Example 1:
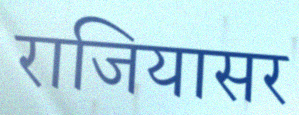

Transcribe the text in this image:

राजियासर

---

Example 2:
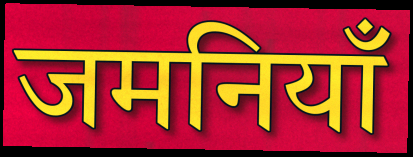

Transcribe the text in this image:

जमनियाँ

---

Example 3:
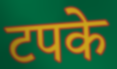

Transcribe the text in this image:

टपके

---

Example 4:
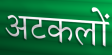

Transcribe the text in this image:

अटकलों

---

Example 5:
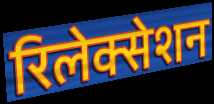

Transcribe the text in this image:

रिलेक्सेशन